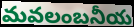
మవలంబనీయ